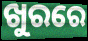
ଖୁରରେ